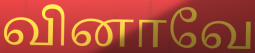
வினாவே